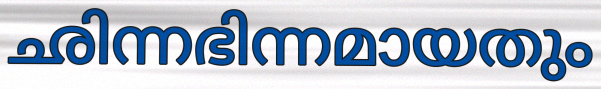
ഛിന്നഭിന്നമായതും